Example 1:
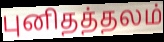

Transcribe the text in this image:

புனிதத்தலம்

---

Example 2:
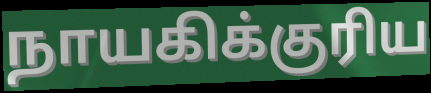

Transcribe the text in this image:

நாயகிக்குரிய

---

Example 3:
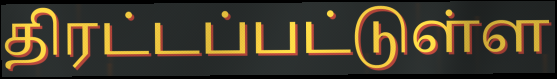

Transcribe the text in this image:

திரட்டப்பட்டுள்ள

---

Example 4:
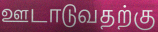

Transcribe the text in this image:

ஊடாடுவதற்கு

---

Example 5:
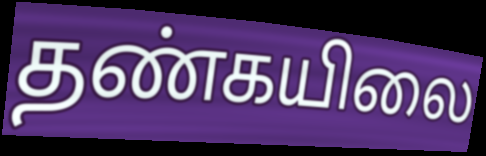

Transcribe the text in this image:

தண்கயிலை